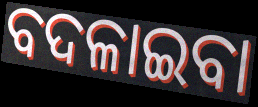
ବଦଳାଇବା